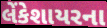
લેંકેશાયરના